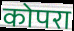
कोपरा